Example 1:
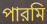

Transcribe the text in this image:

পারমি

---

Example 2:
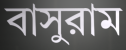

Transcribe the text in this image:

বাসুরাম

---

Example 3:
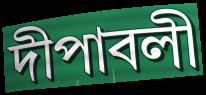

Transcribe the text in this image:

দীপাবলী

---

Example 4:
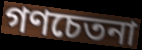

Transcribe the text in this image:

গণচেতনা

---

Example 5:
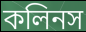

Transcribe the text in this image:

কলিনস